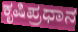
ಕೃಷಿಪ್ರಧಾನ